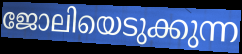
ജോലിയെടുക്കുന്ന